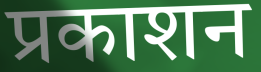
प्रकाशन